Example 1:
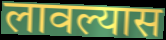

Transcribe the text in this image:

लावल्यास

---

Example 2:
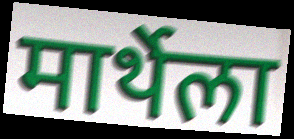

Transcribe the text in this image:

मार्थेला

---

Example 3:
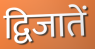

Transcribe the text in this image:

द्विजातें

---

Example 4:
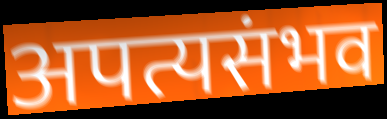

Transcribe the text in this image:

अपत्यसंभव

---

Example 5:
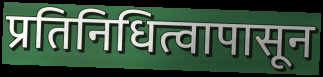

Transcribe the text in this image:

प्रतिनिधित्वापासून